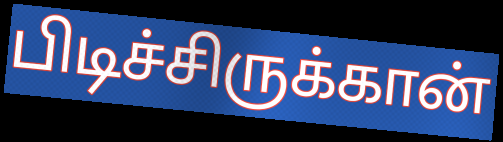
பிடிச்சிருக்கான்